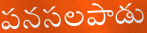
పనసలపాడు